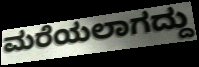
ಮರೆಯಲಾಗದ್ದು